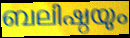
ബലിഷ്ഠയും